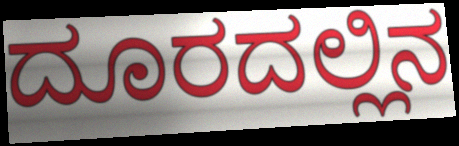
ದೂರದಲ್ಲಿನ